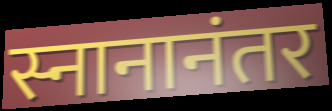
स्नानानंतर